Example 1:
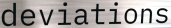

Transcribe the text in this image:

deviations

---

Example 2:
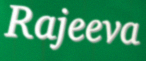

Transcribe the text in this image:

Rajeeva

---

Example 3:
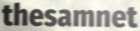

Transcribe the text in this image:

thesamnet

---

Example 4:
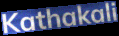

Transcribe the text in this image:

Kathakali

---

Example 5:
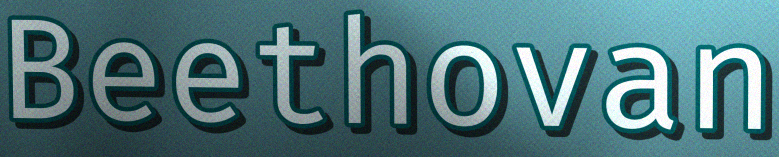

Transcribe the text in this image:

Beethovan